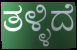
ತಳ್ಳಿದೆ